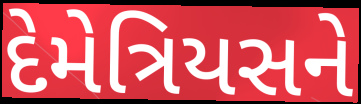
દેમેત્રિયસને